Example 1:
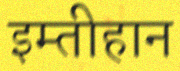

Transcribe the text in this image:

इम्तीहान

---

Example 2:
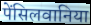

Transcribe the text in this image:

पेंसिलवानिया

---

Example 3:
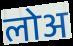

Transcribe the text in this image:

लोअ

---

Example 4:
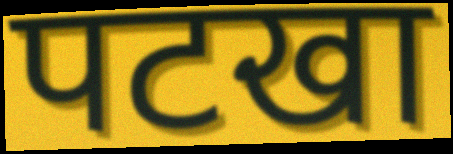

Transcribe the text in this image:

पटखा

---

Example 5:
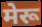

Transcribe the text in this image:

मेरू